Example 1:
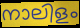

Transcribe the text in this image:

നാലിളം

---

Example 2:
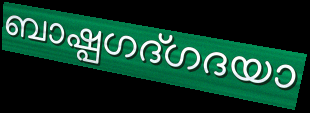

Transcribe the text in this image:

ബാഷ്പഗദ്ഗദയാ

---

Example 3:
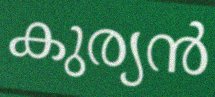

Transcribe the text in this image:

കുര്യൻ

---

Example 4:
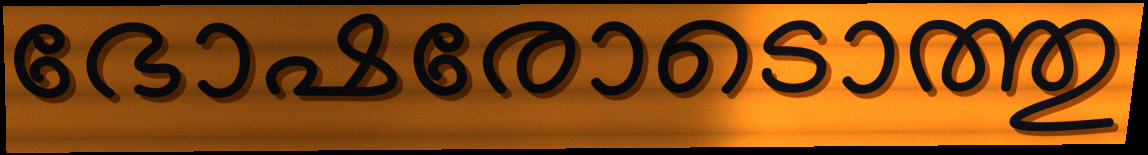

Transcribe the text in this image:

ഭോഷരോടൊത്തു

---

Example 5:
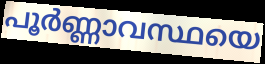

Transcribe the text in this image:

പൂർണ്ണാവസ്ഥയെ